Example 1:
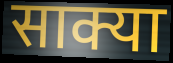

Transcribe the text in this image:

साक्या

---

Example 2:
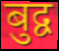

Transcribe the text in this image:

बुद्व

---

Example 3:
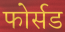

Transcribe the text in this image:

फोर्सड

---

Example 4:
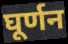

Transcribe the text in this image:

घूर्णन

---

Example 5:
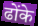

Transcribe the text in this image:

ढोंके